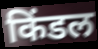
किंडल